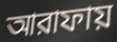
আরাফায়